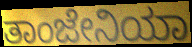
ತಾಂಜೇನಿಯಾ